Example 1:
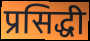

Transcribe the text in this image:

प्रसिद्धी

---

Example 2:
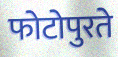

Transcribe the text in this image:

फोटोपुरते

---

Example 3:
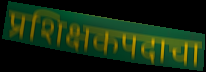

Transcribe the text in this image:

प्रशिक्षकपदाचा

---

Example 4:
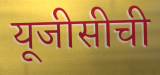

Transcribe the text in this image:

यूजीसीची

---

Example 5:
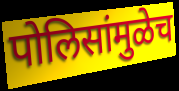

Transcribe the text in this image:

पोलिसांमुळेच